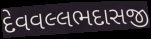
દેવવલ્લભદાસજી